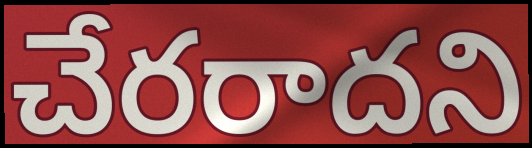
చేరరాదని